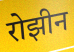
रोझीन